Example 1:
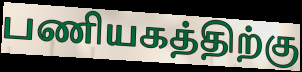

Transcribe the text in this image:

பணியகத்திற்கு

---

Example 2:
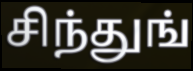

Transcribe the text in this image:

சிந்துங்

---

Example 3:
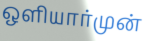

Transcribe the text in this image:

ஒளியார்முன்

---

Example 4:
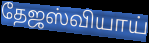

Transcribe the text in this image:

தேஜஸ்வியாய்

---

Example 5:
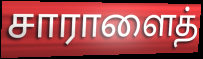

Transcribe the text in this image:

சாராளைத்